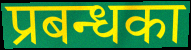
प्रबन्धका